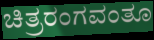
ಚಿತ್ರರಂಗವಂತೂ